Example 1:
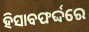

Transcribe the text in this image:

ହିସାବଫର୍ଦ୍ଦରେ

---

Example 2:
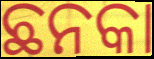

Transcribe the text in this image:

ଛନକା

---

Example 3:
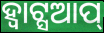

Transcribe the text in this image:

ହ୍ୱାଟ୍ସଆପ୍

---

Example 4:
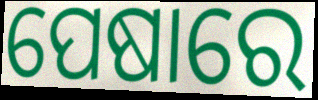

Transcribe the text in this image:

ପେଷାରେ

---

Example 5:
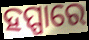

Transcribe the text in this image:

ହପ୍ପାରେ